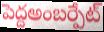
పెద్దఅంబర్పేట్